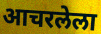
आचरलेला